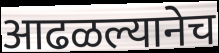
आढळल्यानेच